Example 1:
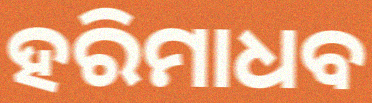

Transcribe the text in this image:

ହରିମାଧବ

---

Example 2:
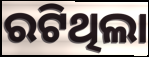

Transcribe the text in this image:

ରଟିଥିଲା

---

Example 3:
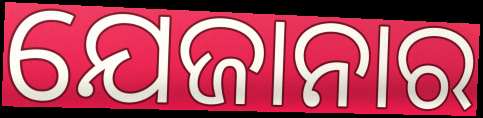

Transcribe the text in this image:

ଯେଜାନାର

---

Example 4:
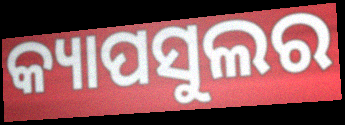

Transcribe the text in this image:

କ୍ୟାପସୁଲର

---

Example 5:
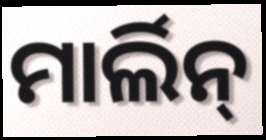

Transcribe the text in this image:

ମାର୍ଲିନ୍